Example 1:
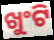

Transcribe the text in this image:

ଖୁଂଟି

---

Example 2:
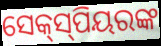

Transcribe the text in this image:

ସେକ୍‌ସ୍‌ପିୟରଙ୍କ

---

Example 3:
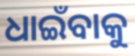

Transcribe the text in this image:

ଧାଇଁବାକୁ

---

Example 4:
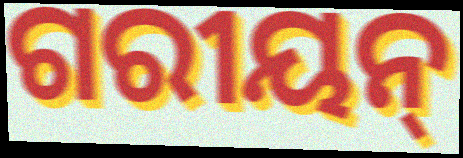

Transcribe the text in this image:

ଗରୀୟନ୍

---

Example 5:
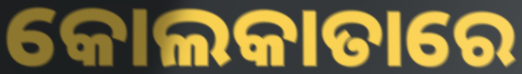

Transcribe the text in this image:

କୋଲକାତାରେ